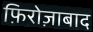
फ़िरोज़ाबाद